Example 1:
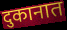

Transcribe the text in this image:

दुकानात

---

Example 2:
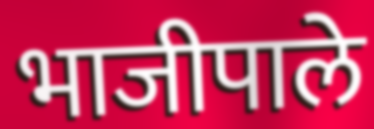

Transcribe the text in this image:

भाजीपाले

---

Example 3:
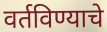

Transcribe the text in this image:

वर्तविण्याचे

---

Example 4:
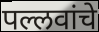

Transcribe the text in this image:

पल्लवांचे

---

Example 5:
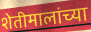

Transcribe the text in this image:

शेतीमालांच्या